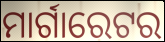
ମାର୍ଗାରେଟର